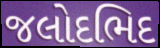
જલોદભિદ